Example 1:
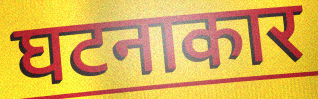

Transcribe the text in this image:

घटनाकार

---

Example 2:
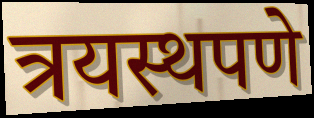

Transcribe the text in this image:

त्रयस्थपणे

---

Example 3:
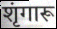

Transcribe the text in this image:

शृंगारू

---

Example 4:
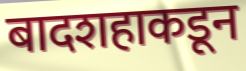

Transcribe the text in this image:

बादशहाकडून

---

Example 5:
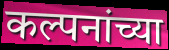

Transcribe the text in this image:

कल्पनांच्या